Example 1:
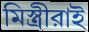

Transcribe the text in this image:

মিস্ত্রীরাই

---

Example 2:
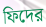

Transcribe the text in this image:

ফিদের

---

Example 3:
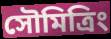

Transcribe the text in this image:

সৌমিত্রিং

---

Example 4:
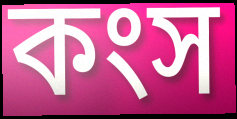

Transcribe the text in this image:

কংস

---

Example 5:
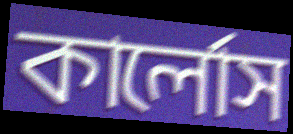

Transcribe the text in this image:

কার্লোস